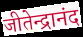
जीतेन्द्रानंद